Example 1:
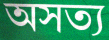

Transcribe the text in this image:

অসত্য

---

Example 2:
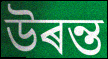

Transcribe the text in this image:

উৰন্ত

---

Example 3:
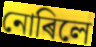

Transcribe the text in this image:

নোৰিলে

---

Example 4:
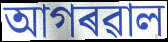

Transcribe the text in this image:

আগৰৱাল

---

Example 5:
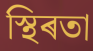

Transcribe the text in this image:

স্থিৰতা